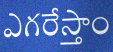
ఎగరేస్తాం